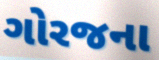
ગોરજના